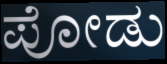
ಪೋಡು